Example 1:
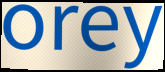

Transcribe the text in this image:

orey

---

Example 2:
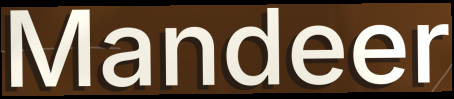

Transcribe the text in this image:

Mandeer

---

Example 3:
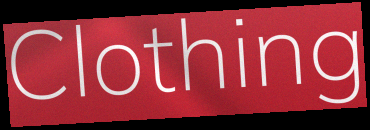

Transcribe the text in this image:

Clothing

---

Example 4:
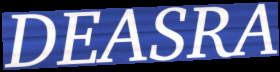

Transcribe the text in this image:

DEASRA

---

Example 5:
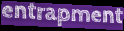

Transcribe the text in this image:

entrapment